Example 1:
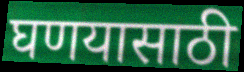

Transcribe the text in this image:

घणयासाठी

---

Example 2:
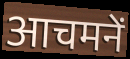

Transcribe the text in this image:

आचमनें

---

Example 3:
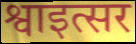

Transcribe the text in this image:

श्वाइत्सर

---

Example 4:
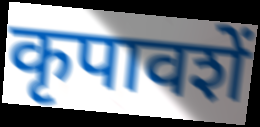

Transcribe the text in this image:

कृपावशें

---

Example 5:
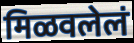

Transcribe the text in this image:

मिळवलेलं